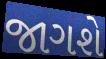
જાગશે